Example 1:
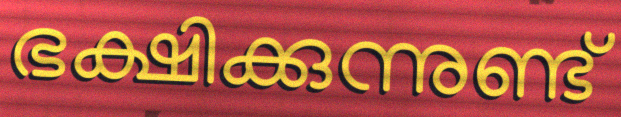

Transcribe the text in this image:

ഭക്ഷിക്കുന്നുണ്ട്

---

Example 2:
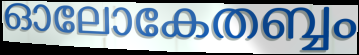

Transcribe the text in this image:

ഓലോകേതബ്ബം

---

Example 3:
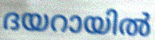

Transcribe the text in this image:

ദയറായിൽ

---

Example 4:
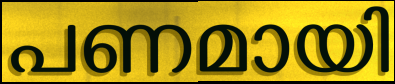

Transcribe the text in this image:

പണമായി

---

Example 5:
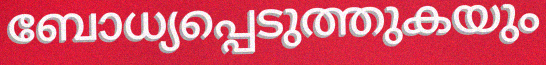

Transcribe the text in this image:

ബോധ്യപ്പെടുത്തുകയും